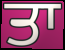
ਤਾ